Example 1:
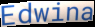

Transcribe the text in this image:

Edwina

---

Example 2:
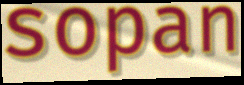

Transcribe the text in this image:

sopan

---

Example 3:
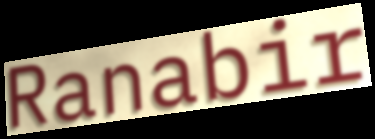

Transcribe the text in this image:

Ranabir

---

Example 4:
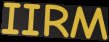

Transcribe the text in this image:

IIRM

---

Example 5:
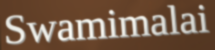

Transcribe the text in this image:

Swamimalai